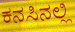
ಕನಸಿನಲ್ಲಿ